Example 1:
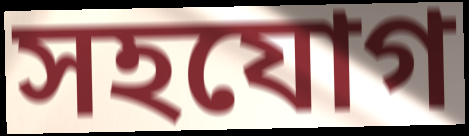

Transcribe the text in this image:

সহযোগ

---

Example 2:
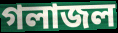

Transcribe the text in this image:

গলাজল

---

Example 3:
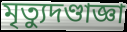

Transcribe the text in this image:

মৃত্যুদণ্ডাজ্ঞা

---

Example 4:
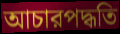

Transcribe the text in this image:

আচারপদ্ধতি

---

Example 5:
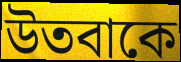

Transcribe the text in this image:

উতবাকে